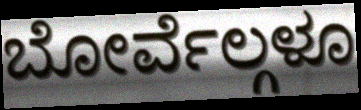
ಬೋರ್ವೆಲ್ಗಳೂ